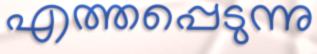
എത്തപ്പെടുന്നു